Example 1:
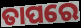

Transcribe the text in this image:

ତାପରେ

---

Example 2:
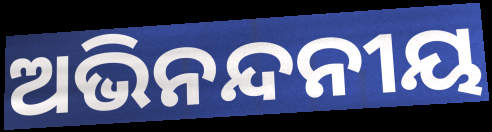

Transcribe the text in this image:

ଅଭିନନ୍ଦନୀୟ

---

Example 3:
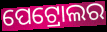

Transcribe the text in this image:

ପେଟ୍ରୋଲର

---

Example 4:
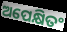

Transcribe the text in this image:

ଅପେକ୍ଷିତଂ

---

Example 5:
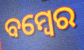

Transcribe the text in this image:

ବମ୍ୱେର